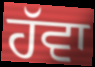
ਹੱਵਾ